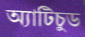
অ্যাটিচুড